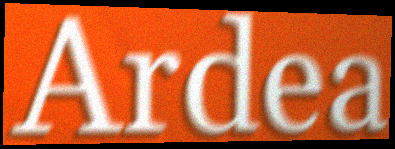
Ardea